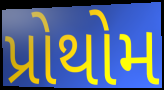
પ્રોથોમ